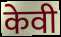
केवी